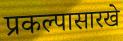
प्रकल्पासारखे